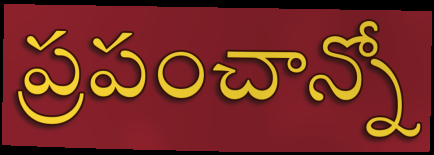
ప్రపంచాన్నో